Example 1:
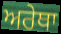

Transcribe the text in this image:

ਅਰੇਥਾ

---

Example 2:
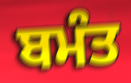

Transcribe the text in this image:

ਬਮੰਤ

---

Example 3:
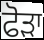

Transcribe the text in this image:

ਫੋੜਾ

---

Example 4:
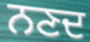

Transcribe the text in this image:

ਨਣਦ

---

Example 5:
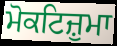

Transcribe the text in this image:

ਮੋਕਟਿਜ਼ੁਮਾ